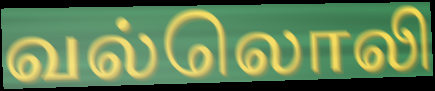
வல்லொலி